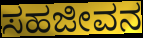
ಸಹಜೀವನ